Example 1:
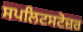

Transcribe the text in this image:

ਸਪਲਿਟਸਟੋਜ਼ਰ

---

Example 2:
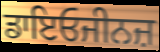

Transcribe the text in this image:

ਡਾਇਓਜੀਨਜ਼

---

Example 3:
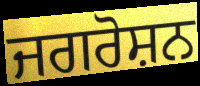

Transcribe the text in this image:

ਜਗਰੋਸ਼ਨ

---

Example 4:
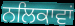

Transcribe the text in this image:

ਨਲਿਕਾਵਾਂ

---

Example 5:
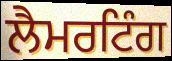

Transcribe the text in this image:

ਲੈਮਰਟਿੰਗ